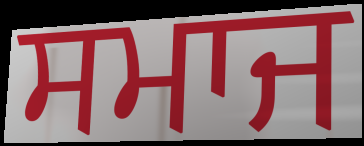
ਸਮਾਜ